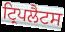
ਟ੍ਰਿਪਲੈਟਸ